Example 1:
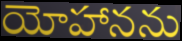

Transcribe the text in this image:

యోహానను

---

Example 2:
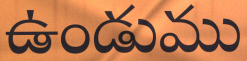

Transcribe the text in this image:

ఉండుము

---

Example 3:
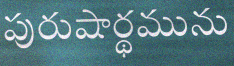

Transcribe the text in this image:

పురుషార్థమును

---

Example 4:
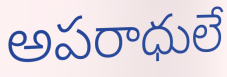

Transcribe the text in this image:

అపరాధులే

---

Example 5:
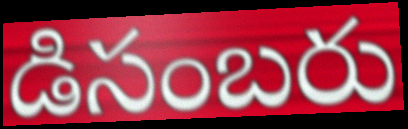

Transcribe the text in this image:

డిసంబరు